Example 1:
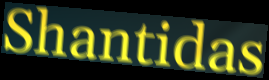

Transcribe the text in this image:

Shantidas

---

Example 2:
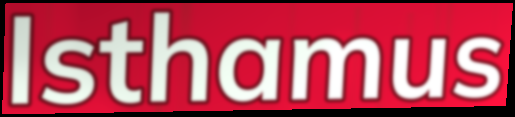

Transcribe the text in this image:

Isthamus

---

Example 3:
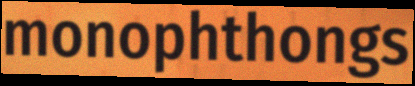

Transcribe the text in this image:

monophthongs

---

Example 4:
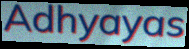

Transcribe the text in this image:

Adhyayas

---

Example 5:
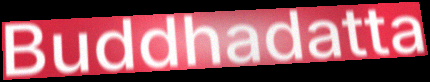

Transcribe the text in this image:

Buddhadatta